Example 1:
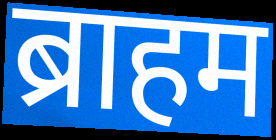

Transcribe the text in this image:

ब्राहम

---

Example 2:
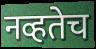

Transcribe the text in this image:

नव्हतेच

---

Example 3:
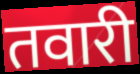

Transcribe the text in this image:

तवारी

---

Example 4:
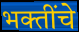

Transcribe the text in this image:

भक्तींचे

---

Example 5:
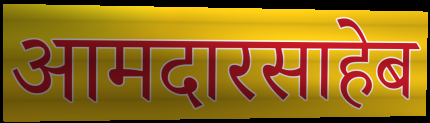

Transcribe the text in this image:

आमदारसाहेब